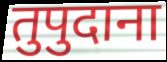
तुपुदाना